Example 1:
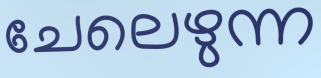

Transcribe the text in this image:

ചേലെഴുന്ന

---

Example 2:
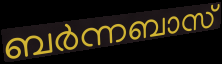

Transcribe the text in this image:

ബർന്നബാസ്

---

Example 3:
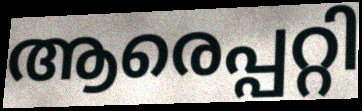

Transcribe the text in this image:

ആരെപ്പറ്റി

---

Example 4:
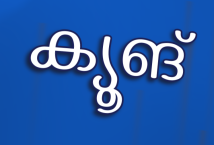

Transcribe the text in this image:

ക്യൂങ്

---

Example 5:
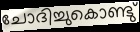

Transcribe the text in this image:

ചോദിച്ചുകൊണ്ടു്